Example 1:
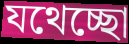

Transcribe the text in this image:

যথেচ্ছো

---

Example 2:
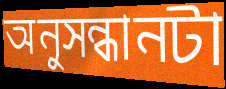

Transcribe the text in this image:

অনুসন্ধানটা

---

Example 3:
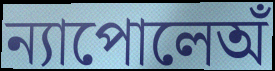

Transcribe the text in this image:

ন্যাপোলেঅঁ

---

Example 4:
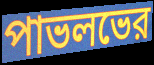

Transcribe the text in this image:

পাভলভের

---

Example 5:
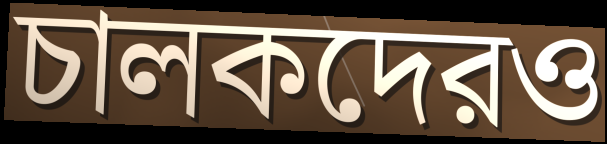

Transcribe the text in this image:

চালকদেরও